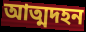
আত্মদহন